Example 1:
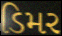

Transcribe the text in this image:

ડિમર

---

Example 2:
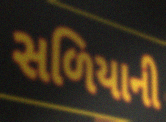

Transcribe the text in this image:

સળિયાની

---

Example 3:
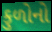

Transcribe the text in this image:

કુળોનો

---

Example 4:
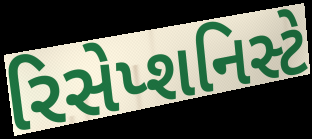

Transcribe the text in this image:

રિસેપ્શનિસ્ટે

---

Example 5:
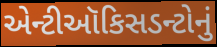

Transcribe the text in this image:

એન્ટીઑકિસડન્ટોનું